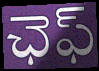
ఛెఫ్